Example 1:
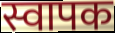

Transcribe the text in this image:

स्‍वापक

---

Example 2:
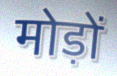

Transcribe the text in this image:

मोड़ों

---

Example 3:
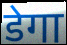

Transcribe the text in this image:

डेगा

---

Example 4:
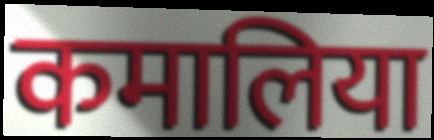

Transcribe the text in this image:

कमालिया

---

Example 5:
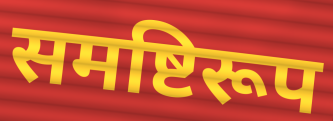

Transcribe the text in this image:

समष्टिरूप